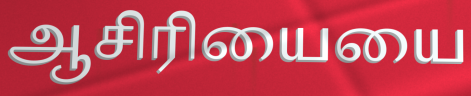
ஆசிரியையை